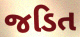
જડિત